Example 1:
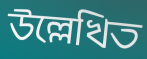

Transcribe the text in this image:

উল্লেখিত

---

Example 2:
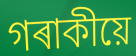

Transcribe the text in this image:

গৰাকীয়ে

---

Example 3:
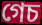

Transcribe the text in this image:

গেচ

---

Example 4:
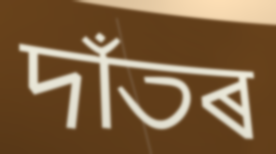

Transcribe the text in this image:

দাঁতৰ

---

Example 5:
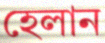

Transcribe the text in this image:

হেলান